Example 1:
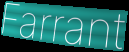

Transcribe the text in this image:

Farrant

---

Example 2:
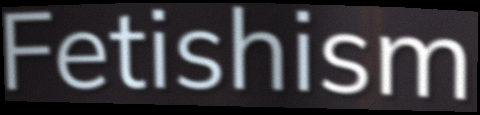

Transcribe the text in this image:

Fetishism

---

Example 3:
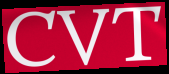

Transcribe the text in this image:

CVT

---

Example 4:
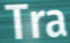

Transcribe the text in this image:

Tra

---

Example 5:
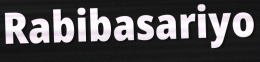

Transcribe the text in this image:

Rabibasariyo